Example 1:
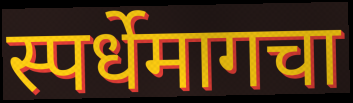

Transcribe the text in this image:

स्पर्धेमागचा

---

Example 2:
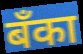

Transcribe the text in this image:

बॅंका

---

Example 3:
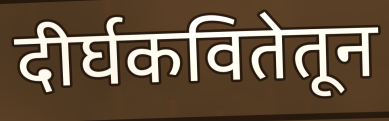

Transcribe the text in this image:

दीर्घकवितेतून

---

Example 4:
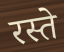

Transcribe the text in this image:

रस्ते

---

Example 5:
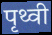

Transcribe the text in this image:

पृथ्वी